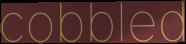
cobbled